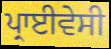
ਪ੍ਰਾਈਵੇਸੀ